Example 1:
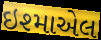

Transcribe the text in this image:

ઇશ્માએલ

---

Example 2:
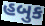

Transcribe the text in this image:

હબુક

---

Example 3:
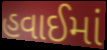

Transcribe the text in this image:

હવાઈમાં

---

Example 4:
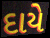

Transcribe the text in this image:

દાયે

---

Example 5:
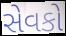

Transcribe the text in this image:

સેવકો